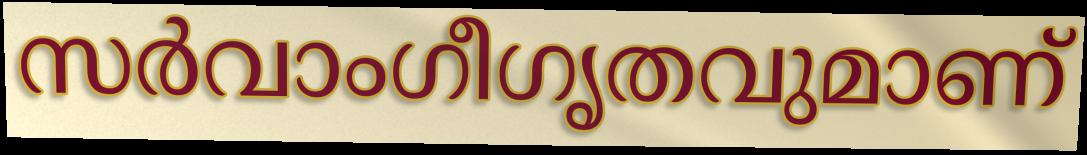
സർവാംഗീഗൃതവുമാണ്